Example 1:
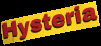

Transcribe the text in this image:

Hysteria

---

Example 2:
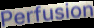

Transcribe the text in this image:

Perfusion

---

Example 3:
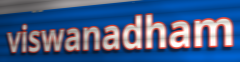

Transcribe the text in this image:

viswanadham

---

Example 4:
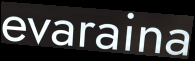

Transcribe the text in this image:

evaraina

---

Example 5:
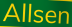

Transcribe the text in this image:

Allsen